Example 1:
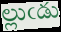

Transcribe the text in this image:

ల్లుఁడు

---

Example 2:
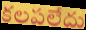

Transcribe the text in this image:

కలపలేదు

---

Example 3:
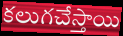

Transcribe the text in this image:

కలుగచేస్తాయి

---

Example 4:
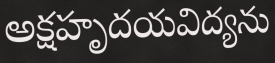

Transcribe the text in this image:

అక్షహృదయవిద్యను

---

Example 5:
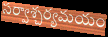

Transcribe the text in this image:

సర్వాశ్చర్యమయం